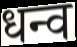
धन्व